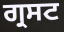
ਗ੍ਰਸਟ